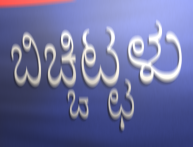
ಬಿಚ್ಚಿಟ್ಟಳು